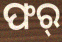
ଫର୍